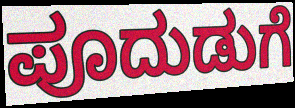
ಪೂದುಡುಗೆ